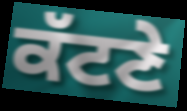
ਕੱਟਣੇ